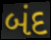
બંદ